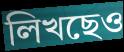
লিখছেও